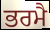
ਭਰਮੈ